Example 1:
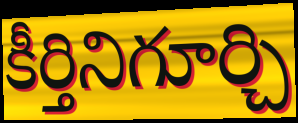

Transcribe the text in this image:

కీర్తినిగూర్చి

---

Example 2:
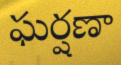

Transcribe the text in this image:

ఘర్షణా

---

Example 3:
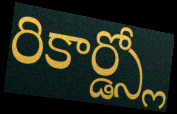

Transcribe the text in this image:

రికార్డ్స్లో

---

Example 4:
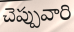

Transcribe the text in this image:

చెప్పువారి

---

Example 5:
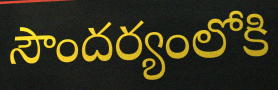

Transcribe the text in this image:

సౌందర్యంలోకి